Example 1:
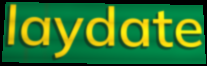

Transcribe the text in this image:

laydate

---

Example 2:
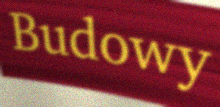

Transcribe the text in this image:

Budowy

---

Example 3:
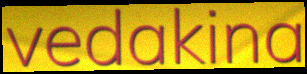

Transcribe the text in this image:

vedakina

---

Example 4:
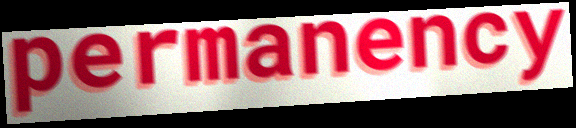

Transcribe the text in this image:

permanency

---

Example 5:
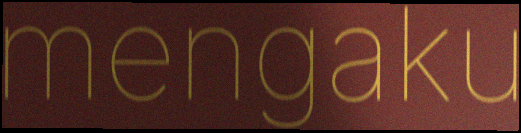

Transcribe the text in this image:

mengaku